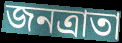
জনত্রাতা